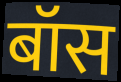
बॉस